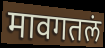
मावगतलं